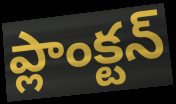
ప్లాంక్టన్